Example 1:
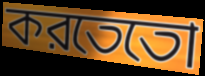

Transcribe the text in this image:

করতেতো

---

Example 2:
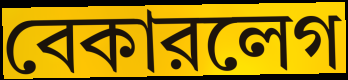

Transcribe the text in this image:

বেকারলেগ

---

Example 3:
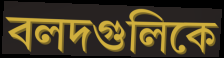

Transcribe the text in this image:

বলদগুলিকে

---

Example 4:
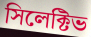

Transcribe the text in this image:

সিলেক্টিভ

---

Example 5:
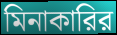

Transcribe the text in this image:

মিনাকারির